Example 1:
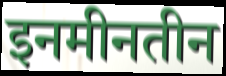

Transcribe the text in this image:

इनमीनतीन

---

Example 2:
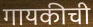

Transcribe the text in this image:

गायकीची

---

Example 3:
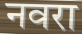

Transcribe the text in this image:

नवरा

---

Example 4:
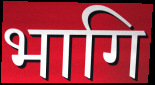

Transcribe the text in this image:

भागि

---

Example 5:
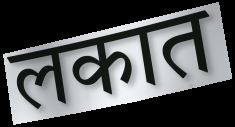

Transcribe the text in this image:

लकात